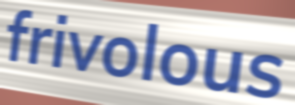
frivolous